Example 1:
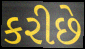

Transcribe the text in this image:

કરીછે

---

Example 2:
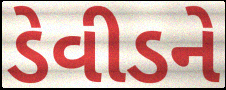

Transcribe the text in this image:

ડેવીડને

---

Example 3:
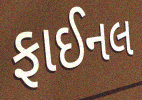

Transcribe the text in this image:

ફાઈનલ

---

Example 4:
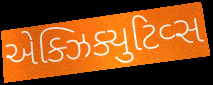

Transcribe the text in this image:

એક્ઝિક્યુટિવ્સ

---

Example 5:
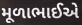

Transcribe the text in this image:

મૂળાભાઈએ